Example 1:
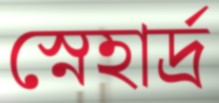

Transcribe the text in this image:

স্নেহার্দ্র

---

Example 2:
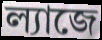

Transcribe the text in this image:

ল্যাজে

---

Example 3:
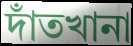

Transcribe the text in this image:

দাঁতখানা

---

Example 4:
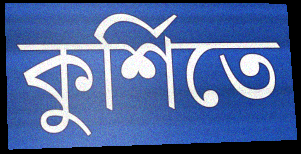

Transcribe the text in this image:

কুর্শিতে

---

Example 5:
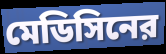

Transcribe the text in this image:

মেডিসিনের